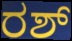
ರಶ್